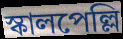
স্কালপেল্লি